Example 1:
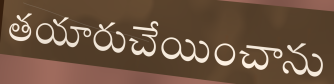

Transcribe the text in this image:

తయారుచేయించాను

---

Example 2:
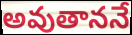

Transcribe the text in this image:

అవుతాననే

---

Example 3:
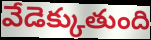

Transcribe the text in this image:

వేడెక్కుతుంది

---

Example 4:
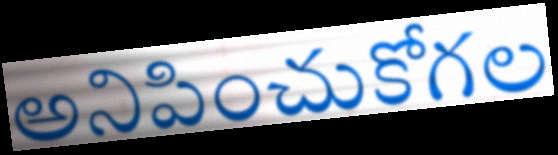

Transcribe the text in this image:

అనిపించుకోగల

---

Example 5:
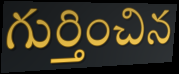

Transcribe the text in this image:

గుర్తించిన